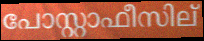
പോസ്റ്റാഫീസില്